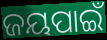
ଜୟପାଇଁ